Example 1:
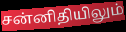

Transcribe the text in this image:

சன்னிதியிலும்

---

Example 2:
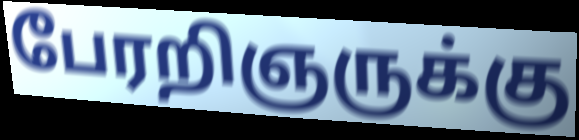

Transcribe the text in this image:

பேரறிஞருக்கு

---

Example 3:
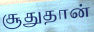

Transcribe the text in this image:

சூதுதான்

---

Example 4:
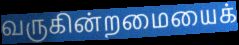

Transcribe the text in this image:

வருகின்றமையைக்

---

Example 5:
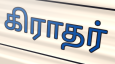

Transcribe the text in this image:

கிராதர்